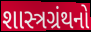
શાસ્ત્રગ્રંથનો